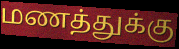
மணத்துக்கு